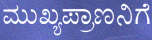
ಮುಖ್ಯಪ್ರಾಣನಿಗೆ